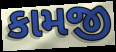
કામજી